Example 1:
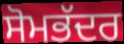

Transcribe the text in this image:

ਸੋਮਭੱਦਰ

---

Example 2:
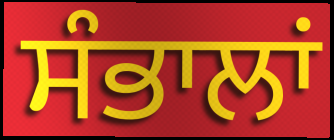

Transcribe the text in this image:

ਸੰਭਾਲਾਂ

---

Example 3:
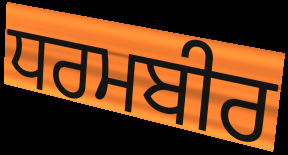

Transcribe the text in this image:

ਧਰਮਬੀਰ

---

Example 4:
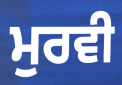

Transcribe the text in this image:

ਮੁਰਵੀ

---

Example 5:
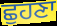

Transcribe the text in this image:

ਛੁਹਣਾ